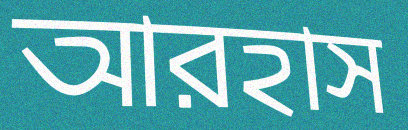
আরহাস